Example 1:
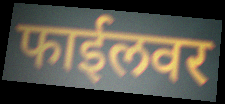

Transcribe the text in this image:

फाईलवर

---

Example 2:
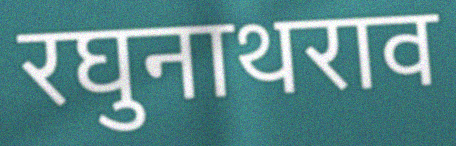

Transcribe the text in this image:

रघुनाथराव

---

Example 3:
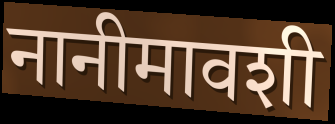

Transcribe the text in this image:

नानीमावशी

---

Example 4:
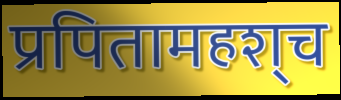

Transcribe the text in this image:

प्रपितामहश्च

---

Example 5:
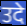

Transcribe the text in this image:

उदे